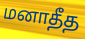
மனாதீத